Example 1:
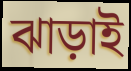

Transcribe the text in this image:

ঝাড়াই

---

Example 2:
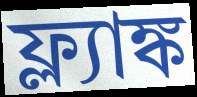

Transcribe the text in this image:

ফ্ল্যাঙ্ক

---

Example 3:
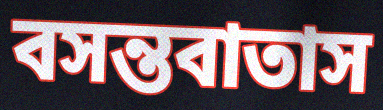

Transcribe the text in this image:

বসন্তবাতাস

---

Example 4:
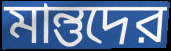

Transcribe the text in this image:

মান্তুদের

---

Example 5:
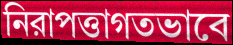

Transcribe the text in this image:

নিরাপত্তাগতভাবে